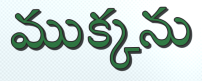
ముక్కను